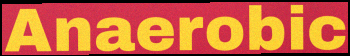
Anaerobic